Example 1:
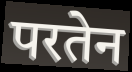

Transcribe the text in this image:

परतेन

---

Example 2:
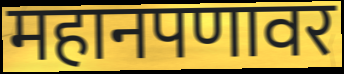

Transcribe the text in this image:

महानपणावर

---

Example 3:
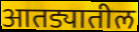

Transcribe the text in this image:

आतड्यातील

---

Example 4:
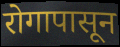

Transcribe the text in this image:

रोगापासून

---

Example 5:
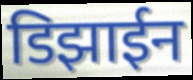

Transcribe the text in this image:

डिझाईन